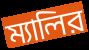
ম্যালির